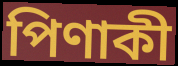
পিণাকী